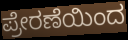
ಪ್ರೇರಣೆಯಿಂದ